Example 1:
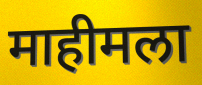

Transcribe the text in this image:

माहीमला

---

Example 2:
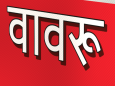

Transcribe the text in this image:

वावरू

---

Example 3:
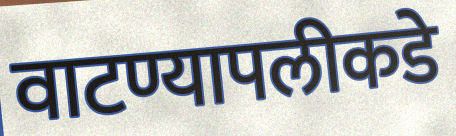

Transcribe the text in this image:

वाटण्यापलीकडे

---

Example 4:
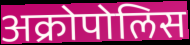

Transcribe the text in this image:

अक्रोपोलिस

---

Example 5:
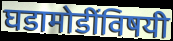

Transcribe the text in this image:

घडामोडींविषयी